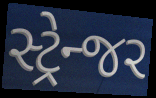
સ્ટ્રેન્જર